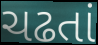
ચઢતાં